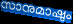
സാനുമാഷും